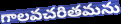
గాలవచరితమను